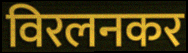
विरलनकर